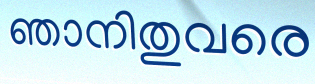
ഞാനിതുവരെ